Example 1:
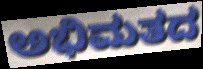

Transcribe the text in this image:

ಅಭಿಮತದ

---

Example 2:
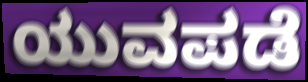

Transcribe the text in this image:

ಯುವಪಡೆ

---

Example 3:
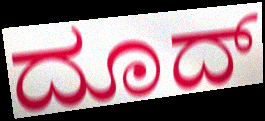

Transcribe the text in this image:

ದೂದ್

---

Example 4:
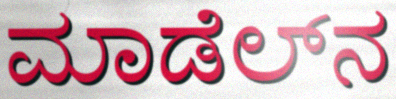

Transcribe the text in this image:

ಮಾಡೆಲ್‌ನ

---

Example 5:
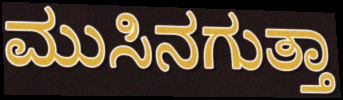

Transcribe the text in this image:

ಮುಸಿನಗುತ್ತಾ